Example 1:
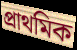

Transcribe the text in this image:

প্রাথমিক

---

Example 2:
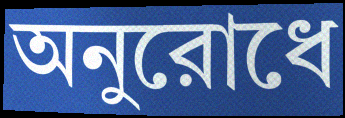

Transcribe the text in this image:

অনুরোধে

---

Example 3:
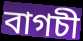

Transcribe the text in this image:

বাগচী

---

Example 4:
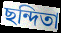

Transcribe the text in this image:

ছন্দিতা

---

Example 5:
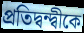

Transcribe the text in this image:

প্রতিদ্বন্দ্বীকে